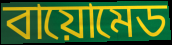
বায়োমেড